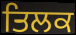
ਤਿਲਕ